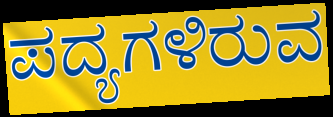
ಪದ್ಯಗಳಿರುವ